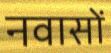
नवासों